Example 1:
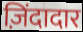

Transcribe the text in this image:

ज़िंदादार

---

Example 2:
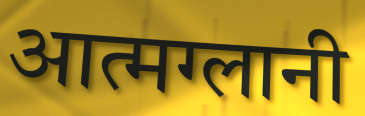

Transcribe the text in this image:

आत्मग्लानी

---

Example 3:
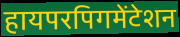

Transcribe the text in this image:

हायपरपिगमेंटेशन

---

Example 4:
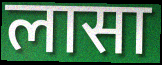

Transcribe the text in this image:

लासा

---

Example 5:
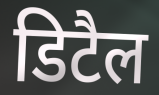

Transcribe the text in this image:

डिटैल